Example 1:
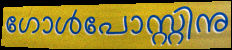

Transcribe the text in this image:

ഗോൾപോസ്റ്റിനു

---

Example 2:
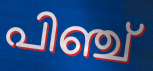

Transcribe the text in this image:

പിഞ്ച്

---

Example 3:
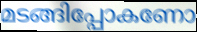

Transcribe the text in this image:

മടങ്ങിപ്പോകണോ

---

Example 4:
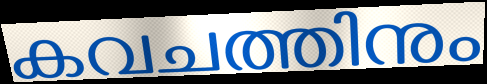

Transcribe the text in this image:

കവചത്തിനും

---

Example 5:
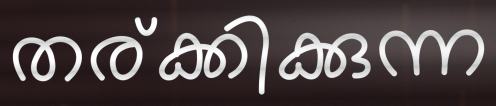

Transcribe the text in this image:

തര്ക്കിക്കുന്ന